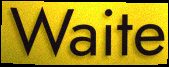
Waite